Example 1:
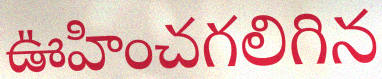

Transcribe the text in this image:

ఊహించగలిగిన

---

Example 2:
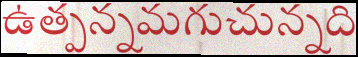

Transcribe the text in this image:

ఉత్పన్నమగుచున్నది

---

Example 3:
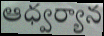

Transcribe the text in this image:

ఆధ్వర్యాన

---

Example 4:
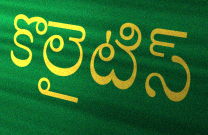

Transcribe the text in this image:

కొలైటిస్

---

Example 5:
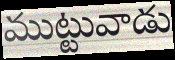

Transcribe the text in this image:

ముట్టువాడు